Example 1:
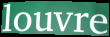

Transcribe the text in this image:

louvre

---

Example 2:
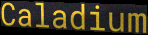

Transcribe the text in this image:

Caladium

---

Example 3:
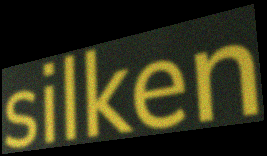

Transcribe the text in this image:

silken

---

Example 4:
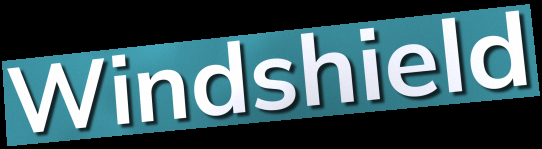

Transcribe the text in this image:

Windshield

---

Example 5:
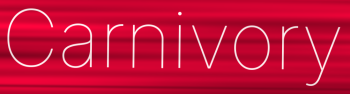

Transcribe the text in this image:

Carnivory